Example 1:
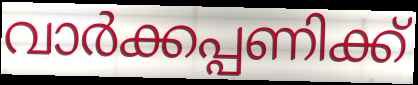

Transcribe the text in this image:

വാർക്കപ്പണിക്ക്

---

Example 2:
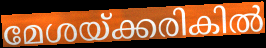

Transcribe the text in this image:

മേശയ്ക്കരികിൽ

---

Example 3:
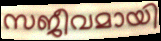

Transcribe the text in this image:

സജീവമായി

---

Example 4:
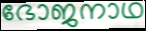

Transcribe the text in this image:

ഭോജനാഥ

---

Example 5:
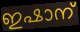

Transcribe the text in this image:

ഇഷാന്